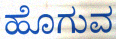
ಹೊಗುವ